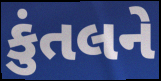
કુંતલને